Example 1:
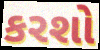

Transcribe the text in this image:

કરશો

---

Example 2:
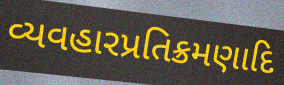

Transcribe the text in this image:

વ્યવહારપ્રતિક્રમણાદિ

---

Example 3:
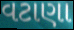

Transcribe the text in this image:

વટાણા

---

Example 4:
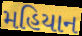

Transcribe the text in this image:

મહિયાન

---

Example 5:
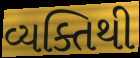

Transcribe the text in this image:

વ્યક્તિથી